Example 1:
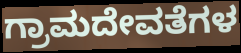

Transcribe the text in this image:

ಗ್ರಾಮದೇವತೆಗಳ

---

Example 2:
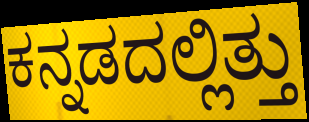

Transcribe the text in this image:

ಕನ್ನಡದಲ್ಲಿತ್ತು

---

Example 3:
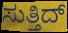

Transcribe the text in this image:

ಸುತ್ತಿದ್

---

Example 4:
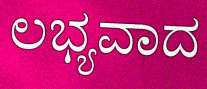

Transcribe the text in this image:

ಲಭ್ಯವಾದ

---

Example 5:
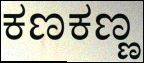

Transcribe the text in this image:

ಕಣಕಣ್ಣ